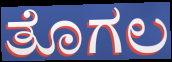
ತೊಗಲ